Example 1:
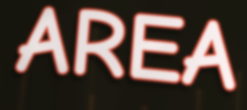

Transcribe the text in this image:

AREA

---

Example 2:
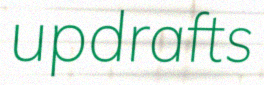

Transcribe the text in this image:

updrafts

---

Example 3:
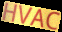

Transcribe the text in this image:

HVAC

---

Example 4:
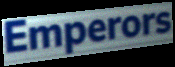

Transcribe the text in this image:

Emperors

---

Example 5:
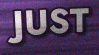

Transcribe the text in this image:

JUST